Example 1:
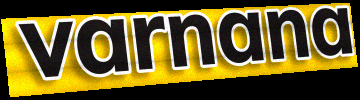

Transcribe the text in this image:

varnana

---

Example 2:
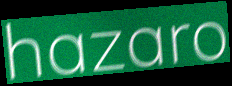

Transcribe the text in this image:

hazaro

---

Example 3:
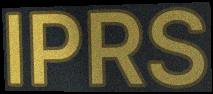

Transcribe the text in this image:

IPRS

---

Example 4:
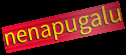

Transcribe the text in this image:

nenapugalu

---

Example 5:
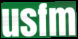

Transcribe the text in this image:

usfm